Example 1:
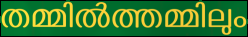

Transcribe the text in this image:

തമ്മിൽത്തമ്മിലും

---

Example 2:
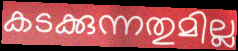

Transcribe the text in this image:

കടക്കുന്നതുമില്ല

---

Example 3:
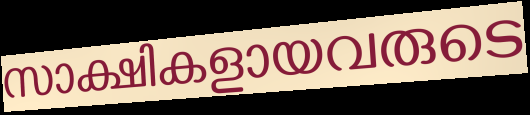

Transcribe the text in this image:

സാക്ഷികളായവരുടെ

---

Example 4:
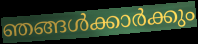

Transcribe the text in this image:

ഞങ്ങൾക്കാർക്കും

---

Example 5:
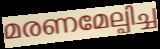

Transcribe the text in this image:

മരണമേല്പിച്ച